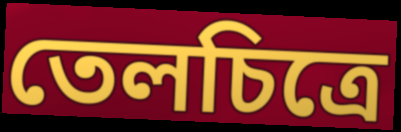
তেলচিত্রে